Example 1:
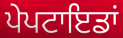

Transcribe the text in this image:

ਪੇਪਟਾਇਡਾਂ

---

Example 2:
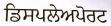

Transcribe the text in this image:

ਡਿਸਪਲੇਅਪੋਰਟ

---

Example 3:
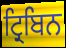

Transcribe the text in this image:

ਟ੍ਰਿਬਿਨ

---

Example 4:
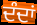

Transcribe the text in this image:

ਦੰਦਾਂ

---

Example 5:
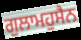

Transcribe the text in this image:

ਗੁਲਾਮਹੁਸੈਨ